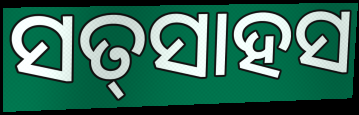
ସତ୍‌ସାହସ